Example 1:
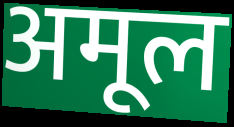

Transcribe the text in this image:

अमूल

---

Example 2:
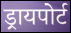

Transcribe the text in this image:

ड्रायपोर्ट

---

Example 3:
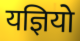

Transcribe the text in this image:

यज्ञियो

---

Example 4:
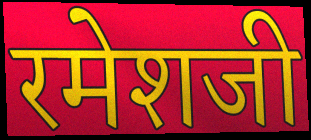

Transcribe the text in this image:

रमेशजी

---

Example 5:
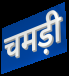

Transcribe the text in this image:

चमड़ी